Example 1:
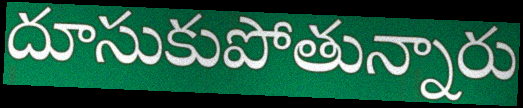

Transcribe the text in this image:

దూసుకుపోతున్నారు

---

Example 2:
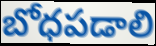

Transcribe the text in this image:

బోధపడాలి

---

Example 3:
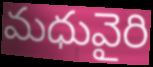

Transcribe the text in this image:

మధువైరి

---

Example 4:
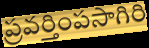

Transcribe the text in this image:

ప్రవర్తింపసాగిరి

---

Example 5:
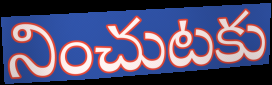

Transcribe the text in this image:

నించుటకు